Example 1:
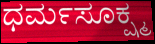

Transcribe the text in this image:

ಧರ್ಮಸೂಕ್ಷ್ಮ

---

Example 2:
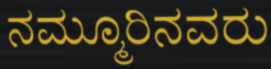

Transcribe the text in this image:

ನಮ್ಮೂರಿನವರು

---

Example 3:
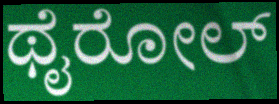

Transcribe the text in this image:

ಥೈರೋಲ್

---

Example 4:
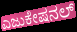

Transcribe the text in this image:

ಎಜುಕೇಷನಲ್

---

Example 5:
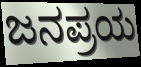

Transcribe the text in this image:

ಜನಪ್ರಯ